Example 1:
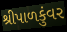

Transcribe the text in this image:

શ્રીપાળકુંવર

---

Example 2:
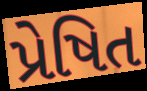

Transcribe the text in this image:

પ્રેષિત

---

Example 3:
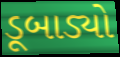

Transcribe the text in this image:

ડૂબાડ્યો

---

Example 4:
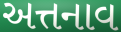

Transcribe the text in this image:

અત્તનાવ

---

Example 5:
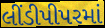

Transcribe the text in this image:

લીંડીપીપરમાં